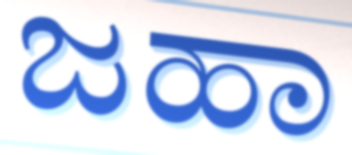
ಜಹಾ